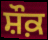
ਸ਼ੌਕ਼